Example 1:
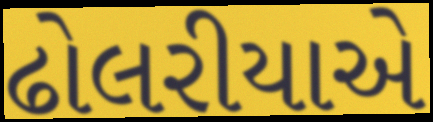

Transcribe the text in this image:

ઢોલરીયાએ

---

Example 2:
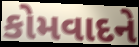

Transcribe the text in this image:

કોમવાદને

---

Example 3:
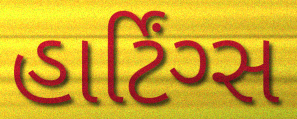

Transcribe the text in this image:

હાર્ટિંગ્સ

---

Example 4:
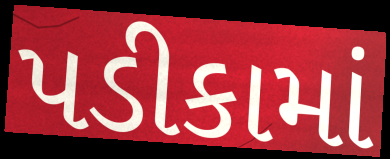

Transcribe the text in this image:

પડીકામાં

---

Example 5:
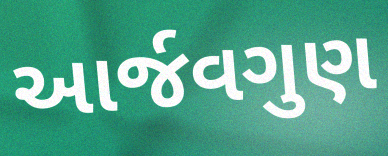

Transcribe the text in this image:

આર્જવગુણ